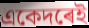
একেদৰেই